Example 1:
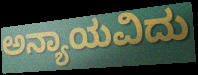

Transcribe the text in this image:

ಅನ್ಯಾಯವಿದು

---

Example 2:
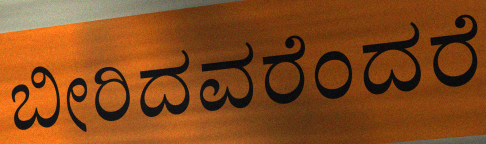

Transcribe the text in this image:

ಬೀರಿದವರೆಂದರೆ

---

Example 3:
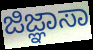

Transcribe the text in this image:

ಜಿಜ್ಞಾಸಾ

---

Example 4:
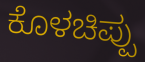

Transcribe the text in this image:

ಕೊಳಚಿಪ್ಪು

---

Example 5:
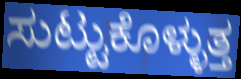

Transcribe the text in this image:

ಸುಟ್ಟುಕೊಳ್ಳುತ್ತ